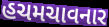
હચમચાવનાર